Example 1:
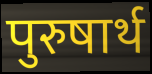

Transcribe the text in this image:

पुरुषार्थ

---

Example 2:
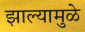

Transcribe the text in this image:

झाल्यामुळे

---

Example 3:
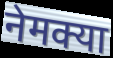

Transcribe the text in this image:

नेमक्या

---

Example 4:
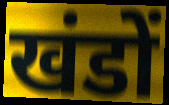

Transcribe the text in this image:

खंडों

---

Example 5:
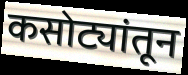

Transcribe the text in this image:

कसोट्यांतून